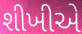
શીખીએ